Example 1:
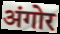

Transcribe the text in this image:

अंगोर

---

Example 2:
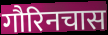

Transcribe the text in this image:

गौरिनचास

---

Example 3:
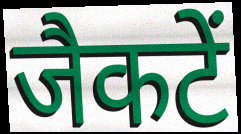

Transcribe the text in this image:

जैकटें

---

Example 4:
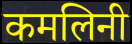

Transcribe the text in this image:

कमलिनी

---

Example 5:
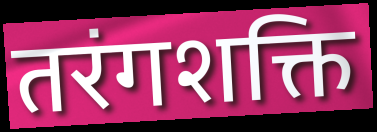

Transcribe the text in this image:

तरंगशक्ति